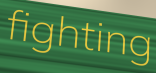
fighting